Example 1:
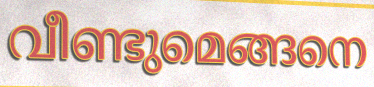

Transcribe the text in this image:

വീണ്ടുമെങ്ങനെ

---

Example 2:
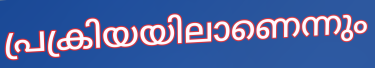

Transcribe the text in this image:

പ്രക്രിയയിലാണെന്നും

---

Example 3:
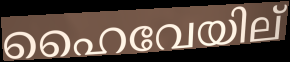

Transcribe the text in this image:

ഹൈവേയില്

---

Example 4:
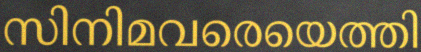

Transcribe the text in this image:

സിനിമവരെയെത്തി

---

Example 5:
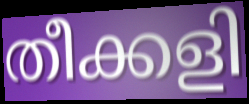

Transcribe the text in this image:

തീക്കളി